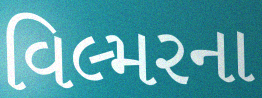
વિલ્મરના